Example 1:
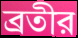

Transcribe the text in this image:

ব্রতীর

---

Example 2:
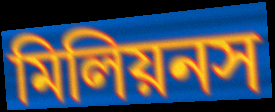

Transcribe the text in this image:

মিলিয়নস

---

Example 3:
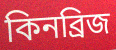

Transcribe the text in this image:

কিনব্রিজ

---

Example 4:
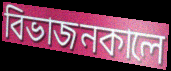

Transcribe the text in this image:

বিভাজনকালে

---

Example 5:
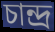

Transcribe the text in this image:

চান্দ্র